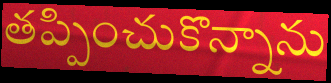
తప్పించుకొన్నాను